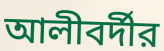
আলীবর্দীর